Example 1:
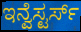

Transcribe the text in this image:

ಇನ್ವೆಸ್ಟರ್ಸ್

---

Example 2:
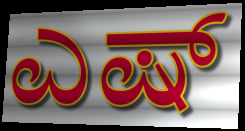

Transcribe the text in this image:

ಎಷ್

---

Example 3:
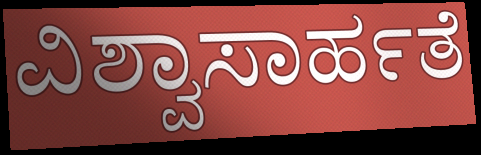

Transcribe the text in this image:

ವಿಶ್ವಾಸಾರ್ಹತೆ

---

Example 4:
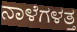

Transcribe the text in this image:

ನಾಳೆಗಳತ್ತ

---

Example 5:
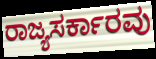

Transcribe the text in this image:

ರಾಜ್ಯಸರ್ಕಾರವು